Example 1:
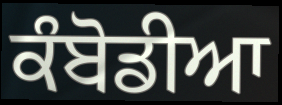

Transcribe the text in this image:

ਕੰਬੋਡੀਆ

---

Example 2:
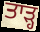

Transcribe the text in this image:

ਤਾੜ੍ਹ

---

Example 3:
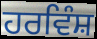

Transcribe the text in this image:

ਹਰਵਿੰਸ਼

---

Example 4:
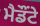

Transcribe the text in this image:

ਮੈਡੌਂਟੇ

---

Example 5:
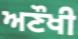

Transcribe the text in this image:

ਅਣੌਖੀ